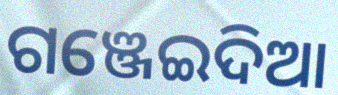
ଗଞ୍ଜେଇଦିଆ